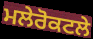
ਮਲੇਰੋਕਟਲੇ